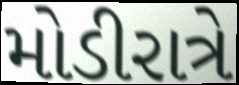
મોડીરાત્રે